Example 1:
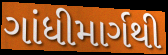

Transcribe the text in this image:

ગાંધીમાર્ગથી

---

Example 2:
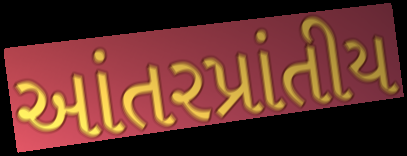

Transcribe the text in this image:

આંતરપ્રાંતીય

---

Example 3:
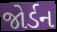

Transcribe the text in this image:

જોર્ડન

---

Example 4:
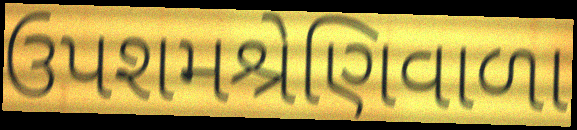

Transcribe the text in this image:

ઉપશમશ્રેણિવાળા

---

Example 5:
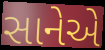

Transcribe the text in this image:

સાનેએ